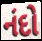
નંદો